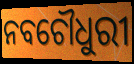
ନବଚୌଧୁରୀ